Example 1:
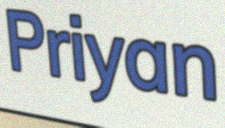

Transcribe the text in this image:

Priyan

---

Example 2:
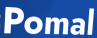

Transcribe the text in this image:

Pomal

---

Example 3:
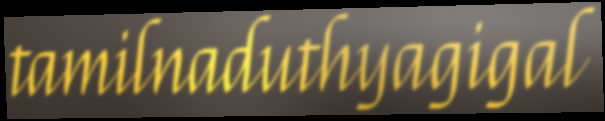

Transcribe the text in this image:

tamilnaduthyagigal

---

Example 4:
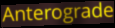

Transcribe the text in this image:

Anterograde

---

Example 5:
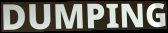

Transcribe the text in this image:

DUMPING